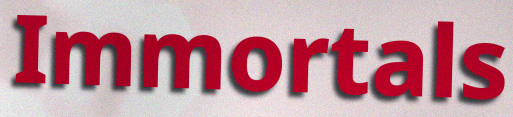
Immortals